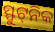
ସ୍ଫୁଟ୍‌ନିକ